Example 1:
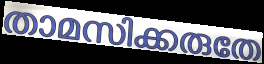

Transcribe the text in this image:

താമസിക്കരുതേ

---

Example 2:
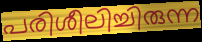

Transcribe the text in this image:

പരിശീലിച്ചിരുന്ന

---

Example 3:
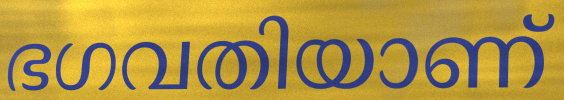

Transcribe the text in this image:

ഭഗവതിയാണ്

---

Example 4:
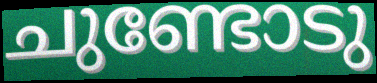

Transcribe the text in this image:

ചുണ്ടോടു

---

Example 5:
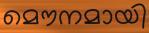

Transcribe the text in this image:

മൌനമായി